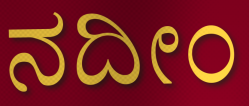
ನದೀಂ